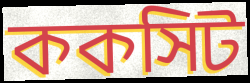
ককসিট